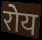
रोय